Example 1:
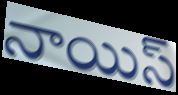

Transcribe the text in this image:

నాయిస్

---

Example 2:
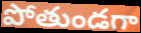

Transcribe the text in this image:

పోతుండగా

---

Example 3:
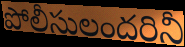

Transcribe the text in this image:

పోలీసులందరినీ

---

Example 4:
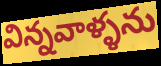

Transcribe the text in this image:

విన్నవాళ్ళను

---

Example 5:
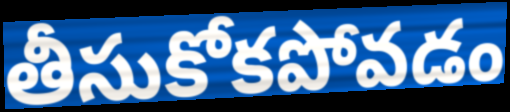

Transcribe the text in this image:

తీసుకోకపోవడం